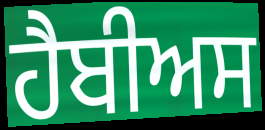
ਹੈਬੀਅਸ